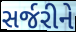
સર્જરીને